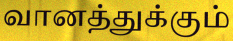
வானத்துக்கும்